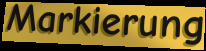
Markierung